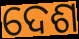
ଦେଶ